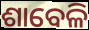
ଶାବେଳି